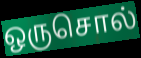
ஒருசொல்